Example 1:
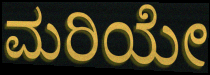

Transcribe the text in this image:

ಮರಿಯೇ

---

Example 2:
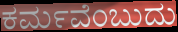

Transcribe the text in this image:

ಕರ್ಮವೆಂಬುದು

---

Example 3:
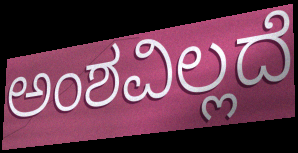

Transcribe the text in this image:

ಅಂಶವಿಲ್ಲದೆ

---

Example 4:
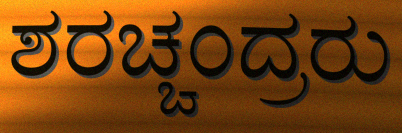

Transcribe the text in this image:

ಶರಚ್ಚಂದ್ರರು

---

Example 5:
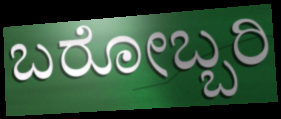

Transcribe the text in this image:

ಬರೋಬ್ಬರಿ